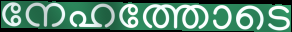
നേഹത്തോടെ